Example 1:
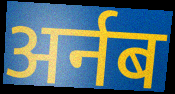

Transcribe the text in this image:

अर्नब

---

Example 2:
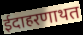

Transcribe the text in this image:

ईदाहरणाथत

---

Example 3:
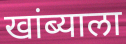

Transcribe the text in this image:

खांब्याला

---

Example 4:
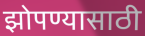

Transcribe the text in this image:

झोपण्यासाठी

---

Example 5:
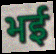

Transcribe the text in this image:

भई